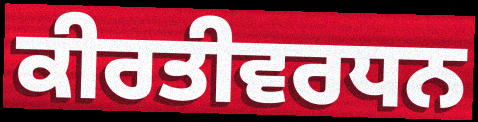
ਕੀਰਤੀਵਰਧਨ